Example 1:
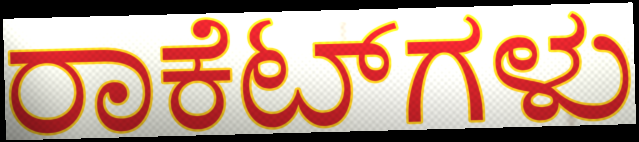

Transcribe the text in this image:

ರಾಕೆಟ್‌ಗಳು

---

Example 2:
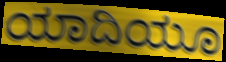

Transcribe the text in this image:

ಯಾದಿಯೂ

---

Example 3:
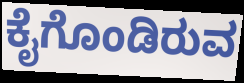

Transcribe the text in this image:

ಕೈಗೊಂಡಿರುವ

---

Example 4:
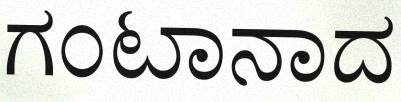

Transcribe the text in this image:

ಗಂಟಾನಾದ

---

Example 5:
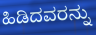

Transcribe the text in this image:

ಹಿಡಿದವರನ್ನು